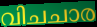
വിചചാര